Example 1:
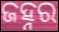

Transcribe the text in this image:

ଜହ୍ନର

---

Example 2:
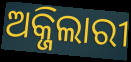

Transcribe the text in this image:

ଅକ୍ଜିଲାରୀ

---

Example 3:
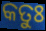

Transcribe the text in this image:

କତୁଃ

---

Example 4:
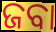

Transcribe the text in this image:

ଜବା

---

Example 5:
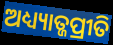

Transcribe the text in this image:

ଅଧ୍ୟ୍ୟାତ୍ଜପ୍ରୀତି